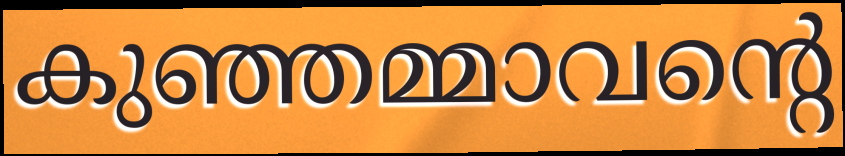
കുഞ്ഞമ്മാവന്റെ